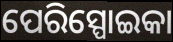
ପେରିସ୍ପୋଇକା